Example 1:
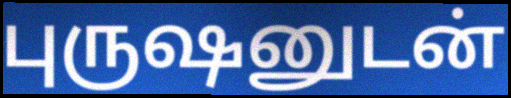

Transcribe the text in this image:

புருஷனுடன்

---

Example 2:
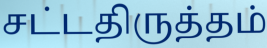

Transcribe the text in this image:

சட்டதிருத்தம்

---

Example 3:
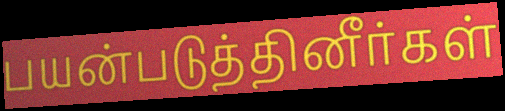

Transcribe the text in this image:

பயன்படுத்தினீர்கள்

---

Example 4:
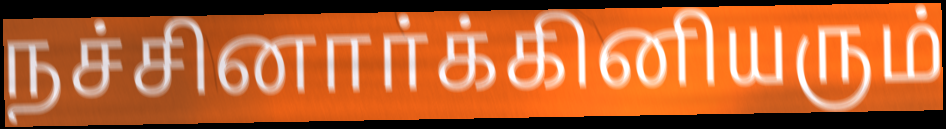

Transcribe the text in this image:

நச்சினார்க்கினியரும்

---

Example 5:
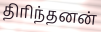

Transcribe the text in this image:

திரிந்தனன்